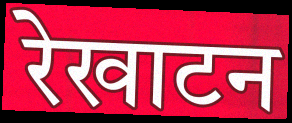
रेखाटन